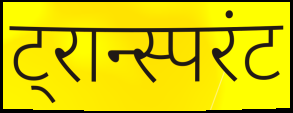
ट्रान्स्परंट